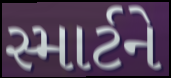
સ્માર્ટને